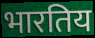
भारतिय